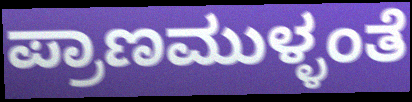
ಪ್ರಾಣಮುಳ್ಳಂತೆ